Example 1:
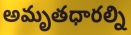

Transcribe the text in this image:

అమృతధారల్ని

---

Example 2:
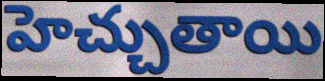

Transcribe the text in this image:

హెచ్చుతాయి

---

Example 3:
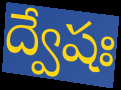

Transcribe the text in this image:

ద్వేషః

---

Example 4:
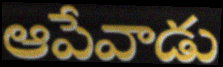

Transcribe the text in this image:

ఆపేవాడు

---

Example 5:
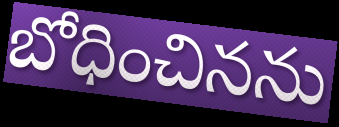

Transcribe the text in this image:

బోధించినను